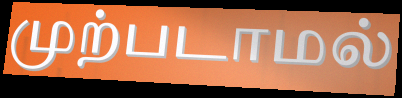
முற்படாமல்